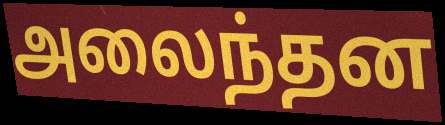
அலைந்தன